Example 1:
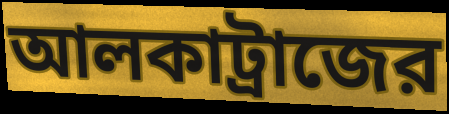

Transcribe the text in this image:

আলকাট্রাজের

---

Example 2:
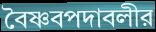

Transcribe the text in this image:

বৈষ্ণবপদাবলীর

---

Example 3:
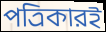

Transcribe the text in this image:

পত্রিকারই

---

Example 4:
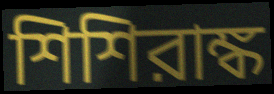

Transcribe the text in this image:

শিশিরাঙ্ক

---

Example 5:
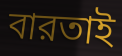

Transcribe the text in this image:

বারতাই